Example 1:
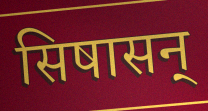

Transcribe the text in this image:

सिषासन्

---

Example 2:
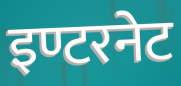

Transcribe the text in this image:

इण्टरनेट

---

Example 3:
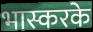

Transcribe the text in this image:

भास्करके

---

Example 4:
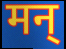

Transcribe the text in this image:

मन्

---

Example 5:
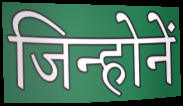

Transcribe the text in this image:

जिन्होनें